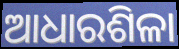
ଆଧାରଶିଳା